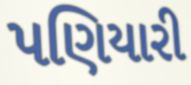
પણિયારી